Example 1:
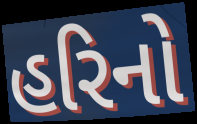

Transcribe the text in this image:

હરિનો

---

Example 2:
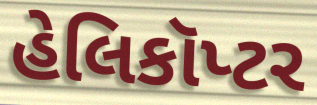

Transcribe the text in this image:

હેલિકૉપ્ટર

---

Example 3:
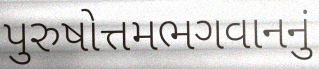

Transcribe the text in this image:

પુરુષોત્તમભગવાનનું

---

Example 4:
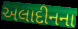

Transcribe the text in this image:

અલાદીનના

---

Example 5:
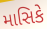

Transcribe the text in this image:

માસિકે